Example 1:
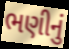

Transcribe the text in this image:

ભણીનું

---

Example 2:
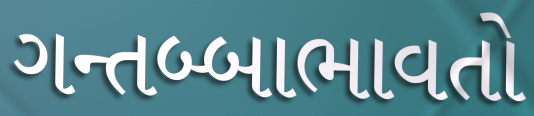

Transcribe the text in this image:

ગન્તબ્બાભાવતો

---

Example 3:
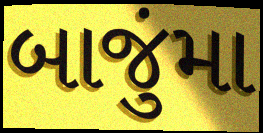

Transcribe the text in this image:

બાજુંમા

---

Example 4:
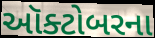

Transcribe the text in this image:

ઑક્ટોબરના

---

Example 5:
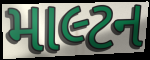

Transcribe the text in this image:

માલ્ટન